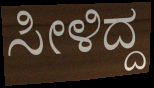
ಸೀಳಿದ್ದ